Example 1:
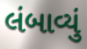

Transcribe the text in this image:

લંબાવ્યું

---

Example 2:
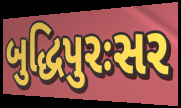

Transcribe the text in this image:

બુદ્ધિપુરઃસર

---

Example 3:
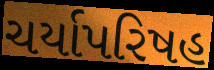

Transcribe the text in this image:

ચર્યાપરિષહ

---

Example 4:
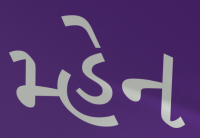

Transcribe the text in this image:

મ્હેન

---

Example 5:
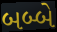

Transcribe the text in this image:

બબ્બે